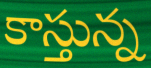
కాస్తున్న